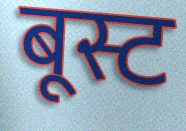
बूस्ट